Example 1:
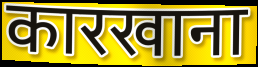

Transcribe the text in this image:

कारखाना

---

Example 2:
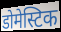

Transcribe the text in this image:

डोमेस्टिक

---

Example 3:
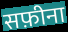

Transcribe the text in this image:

सफ़ीना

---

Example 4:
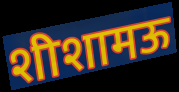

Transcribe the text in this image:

शीशामऊ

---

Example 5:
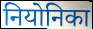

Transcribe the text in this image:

नियोनिका